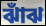
ঝাঁঝ